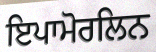
ਇਪਾਮੋਰਲਿਨ